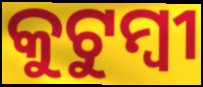
କୁଟୁମ୍ବୀ